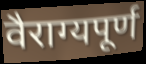
वैराग्यपूर्ण